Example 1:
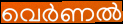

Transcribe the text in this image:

വെർണൽ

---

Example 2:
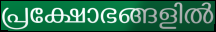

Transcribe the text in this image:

പ്രക്ഷോഭങ്ങളിൽ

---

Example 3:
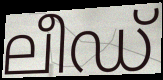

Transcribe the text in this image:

ലീഡ്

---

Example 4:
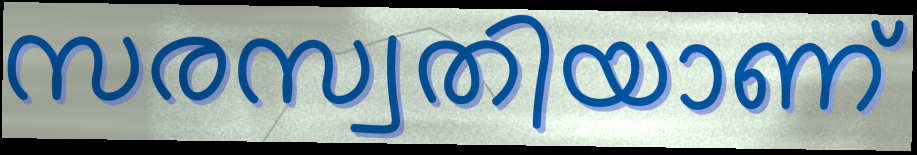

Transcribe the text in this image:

സരസ്വതിയാണ്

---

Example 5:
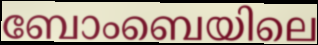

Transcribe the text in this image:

ബോംബെയിലെ